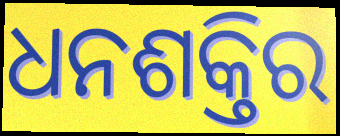
ଧନଶକ୍ତିର